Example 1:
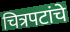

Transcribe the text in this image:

चित्रपटांचे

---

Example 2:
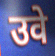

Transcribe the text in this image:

उवे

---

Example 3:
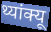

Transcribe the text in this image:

थ्यांक्यू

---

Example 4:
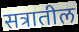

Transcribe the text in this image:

सत्रातील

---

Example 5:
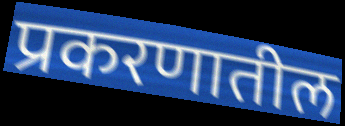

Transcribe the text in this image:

प्रकरणातील